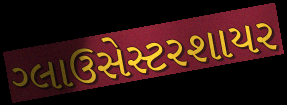
ગ્લાઉસેસ્ટરશાયર